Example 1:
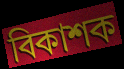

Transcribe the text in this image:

বিকাশক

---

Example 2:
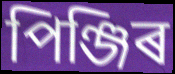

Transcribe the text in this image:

পিঞ্জিৰ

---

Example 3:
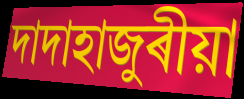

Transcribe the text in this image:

দাদাহাজুৰীয়া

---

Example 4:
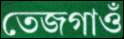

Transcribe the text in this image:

তেজগাওঁ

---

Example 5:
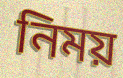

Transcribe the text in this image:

নিময়